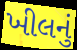
ખીલનું